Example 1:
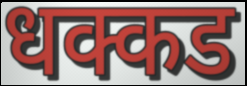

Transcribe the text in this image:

धक्कड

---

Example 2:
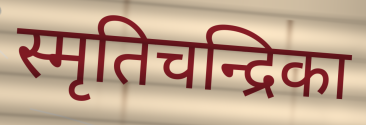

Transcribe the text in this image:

स्मृतिचन्द्रिका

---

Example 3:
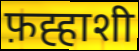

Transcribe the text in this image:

फ़ह्हाशी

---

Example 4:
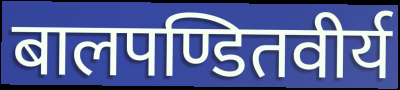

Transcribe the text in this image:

बालपण्डितवीर्य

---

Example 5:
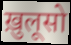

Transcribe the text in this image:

ख़ुलूसो